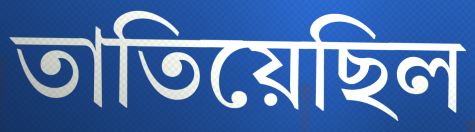
তাতিয়েছিল